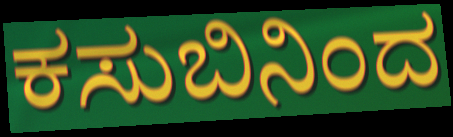
ಕಸುಬಿನಿಂದ